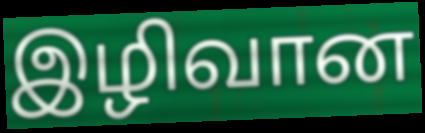
இழிவான